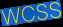
WCSS